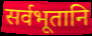
सर्वभूतानि